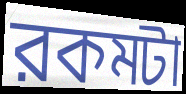
রকমটা